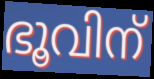
ഭൂവിന്